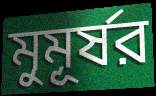
মুমূর্ষর